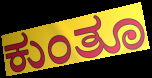
ಕುಂತೂ